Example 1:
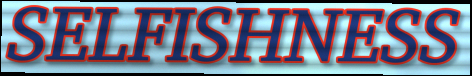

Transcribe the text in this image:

SELFISHNESS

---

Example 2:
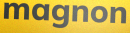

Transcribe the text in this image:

magnon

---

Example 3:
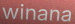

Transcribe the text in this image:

winana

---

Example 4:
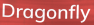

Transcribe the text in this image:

Dragonfly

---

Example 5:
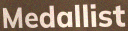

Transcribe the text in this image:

Medallist